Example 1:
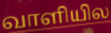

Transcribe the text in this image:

வாளியில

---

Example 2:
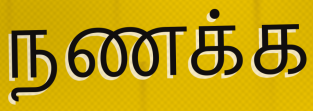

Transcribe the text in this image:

நணக்க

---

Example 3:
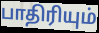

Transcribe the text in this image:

பாதிரியும்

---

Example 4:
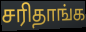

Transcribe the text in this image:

சரிதாங்க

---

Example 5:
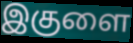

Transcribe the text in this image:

இகுளை